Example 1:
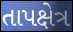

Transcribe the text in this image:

તાપક્ષેત્ર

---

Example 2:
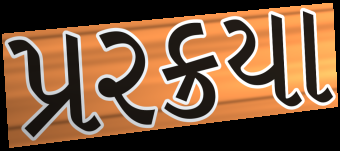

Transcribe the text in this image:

પ્રરક્રયા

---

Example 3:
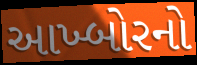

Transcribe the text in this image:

આખ્બોરનો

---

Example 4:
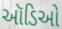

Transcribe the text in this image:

ઑડિઓ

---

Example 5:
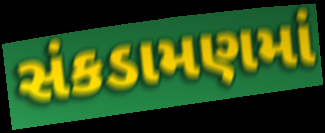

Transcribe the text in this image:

સંકડામણમાં